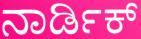
ನಾರ್ಡಿಕ್